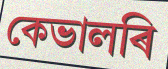
কেভালৰি